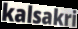
kalsakri